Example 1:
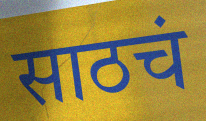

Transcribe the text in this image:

साठचं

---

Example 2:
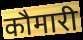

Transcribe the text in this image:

कौमारी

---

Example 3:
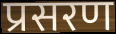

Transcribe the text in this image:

प्रसरण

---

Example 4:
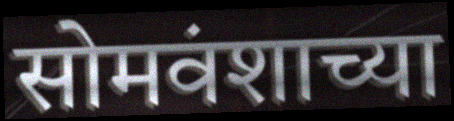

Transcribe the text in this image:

सोमवंशाच्या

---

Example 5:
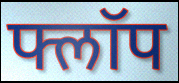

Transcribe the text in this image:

फ्लॉप